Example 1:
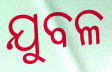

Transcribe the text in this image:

ଯୁବଳ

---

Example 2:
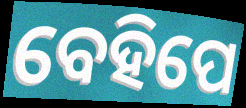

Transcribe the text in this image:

ବେହିପେ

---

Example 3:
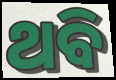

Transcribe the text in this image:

ଥବି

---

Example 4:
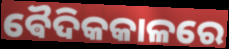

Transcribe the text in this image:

ଵୈଦିକକାଳରେ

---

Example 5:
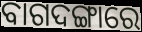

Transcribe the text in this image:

ବାଗଦଙ୍ଗାରେ